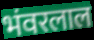
भंवरलाल